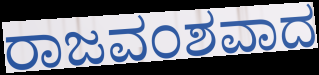
ರಾಜವಂಶವಾದ